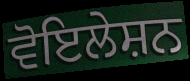
ਵੋਇਲੇਸ਼ਨ